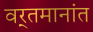
वर्तमानांत